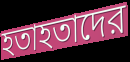
হতাহতাদের